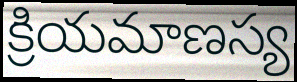
క్రియమాణస్య